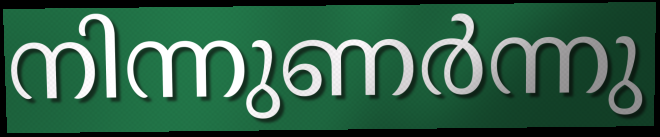
നിന്നുണർന്നു